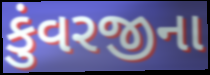
કુંવરજીના